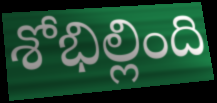
శోభిల్లింది